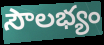
సౌలభ్యం